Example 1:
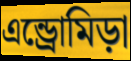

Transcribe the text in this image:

এন্ড্রোমিড়া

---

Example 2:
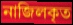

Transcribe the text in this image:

নাজিলকৃত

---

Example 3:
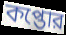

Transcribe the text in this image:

কপ্তোর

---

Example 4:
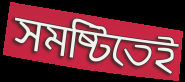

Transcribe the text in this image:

সমষ্টিতেই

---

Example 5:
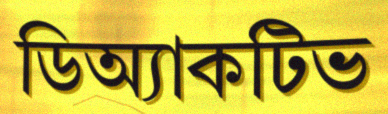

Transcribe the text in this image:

ডিঅ্যাকটিভ